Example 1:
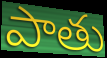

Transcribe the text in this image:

పాతు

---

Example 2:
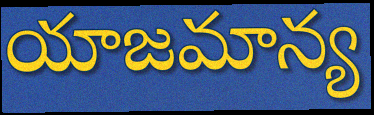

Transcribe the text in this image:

యాజమాన్య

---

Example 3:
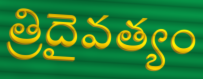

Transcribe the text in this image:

త్రిదైవత్యం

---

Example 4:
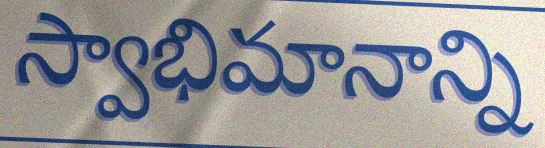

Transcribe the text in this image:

స్వాభిమానాన్ని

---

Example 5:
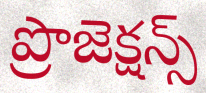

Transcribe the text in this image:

ప్రొజెక్షన్స్